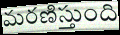
మరణిస్తుంది